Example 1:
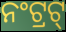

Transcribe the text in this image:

ନଂଟ୍ରଟ୍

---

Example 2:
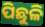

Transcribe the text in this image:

ପିଛୁଳି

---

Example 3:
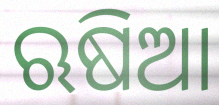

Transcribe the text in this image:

ଋଷିଆ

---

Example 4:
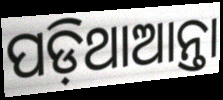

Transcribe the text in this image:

ପଡ଼ିଥାଆନ୍ତା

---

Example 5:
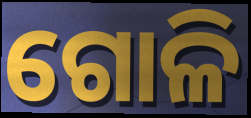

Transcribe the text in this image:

ଗୋଳି